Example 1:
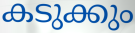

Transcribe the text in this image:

കടുക്കും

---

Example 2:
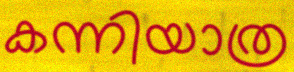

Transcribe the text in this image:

കന്നിയാത്ര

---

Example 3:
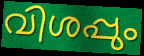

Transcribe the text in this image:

വിശപ്പും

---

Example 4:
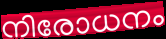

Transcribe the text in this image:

നിരോധനം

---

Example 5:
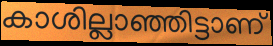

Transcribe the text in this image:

കാശില്ലാഞ്ഞിട്ടാണ്